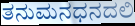
ತನುಮನಧನದಲಿ